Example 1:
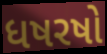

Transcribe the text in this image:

ધષરષો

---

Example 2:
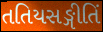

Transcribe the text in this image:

તતિયસઙ્ગીતિં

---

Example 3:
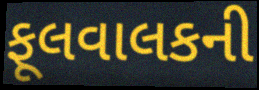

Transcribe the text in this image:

ફૂલવાલકની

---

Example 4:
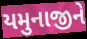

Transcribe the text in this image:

યમુનાજીને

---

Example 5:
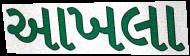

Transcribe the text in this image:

આખલા